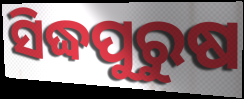
ସିଦ୍ଧପୁରୁଷ